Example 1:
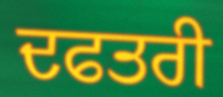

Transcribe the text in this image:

ਦਫਤਰੀ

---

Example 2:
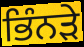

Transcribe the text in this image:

ਭਿੰਨੜੇ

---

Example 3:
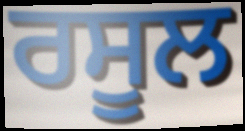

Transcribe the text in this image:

ਰਸੂਲ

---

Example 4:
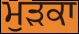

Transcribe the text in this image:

ਮੁੜਕਾ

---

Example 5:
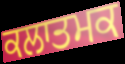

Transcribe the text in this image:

ਕਲਾਤਮਕ